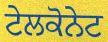
ਟੇਲਕੋਨੇਟ